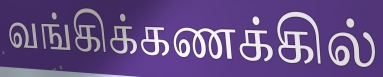
வங்கிக்கணக்கில்